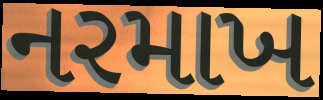
નરમાખ